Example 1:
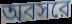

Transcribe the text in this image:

অবসরে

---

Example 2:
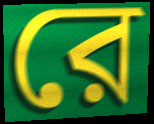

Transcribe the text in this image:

রে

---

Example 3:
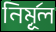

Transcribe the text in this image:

নির্মূল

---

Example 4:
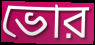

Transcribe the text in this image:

ভোর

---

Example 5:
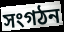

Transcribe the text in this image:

সংগঠন